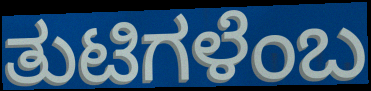
ತುಟಿಗಳೆಂಬ